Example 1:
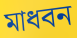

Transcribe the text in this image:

মাধবন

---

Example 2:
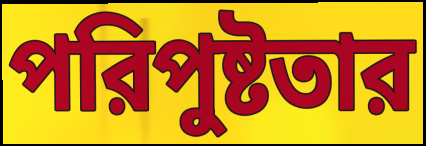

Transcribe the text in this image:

পরিপুষ্টতার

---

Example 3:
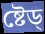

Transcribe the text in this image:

ষ্টেড্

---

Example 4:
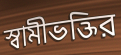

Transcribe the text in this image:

স্বামীভক্তির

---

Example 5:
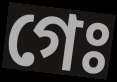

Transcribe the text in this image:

গেঃ